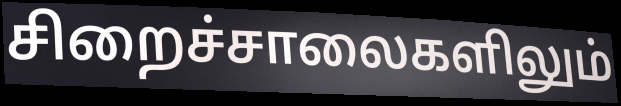
சிறைச்சாலைகளிலும்